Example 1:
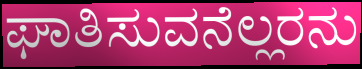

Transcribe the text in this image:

ಘಾತಿಸುವನೆಲ್ಲರನು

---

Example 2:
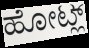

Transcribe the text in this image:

ಹೋಟ್ಲ್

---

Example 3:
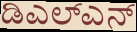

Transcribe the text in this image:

ಡಿಎಲ್ಎನ್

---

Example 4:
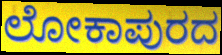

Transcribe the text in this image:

ಲೋಕಾಪುರದ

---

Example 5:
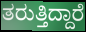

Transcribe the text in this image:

ತರುತ್ತಿದ್ದಾರೆ